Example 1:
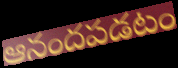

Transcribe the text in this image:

ఆనందపడటం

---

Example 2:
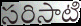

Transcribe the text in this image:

సరిసాటి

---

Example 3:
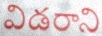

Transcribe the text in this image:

విడరాని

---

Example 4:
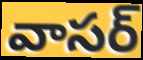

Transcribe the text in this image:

వాసర్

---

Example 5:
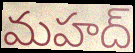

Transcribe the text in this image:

మహద్